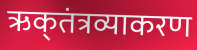
ऋक्‌तंत्रव्याकरण